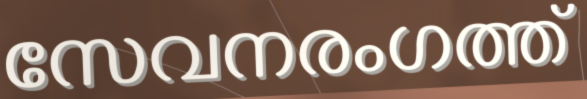
സേവനരംഗത്ത്